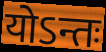
योऽन्तः